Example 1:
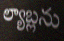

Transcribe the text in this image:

ల్యాబ్లను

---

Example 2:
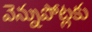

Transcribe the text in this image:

వెన్నుపోట్లకు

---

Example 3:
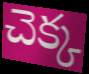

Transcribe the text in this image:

చెక్క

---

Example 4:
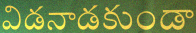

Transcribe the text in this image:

విడనాడకుండా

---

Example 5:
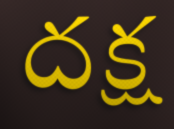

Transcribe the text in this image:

దక్ష